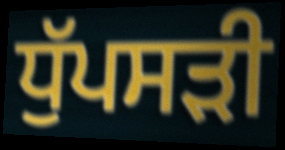
ਧੁੱਪਸੜੀ